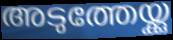
അടുത്തേയ്ക്കു